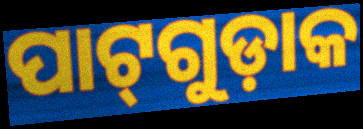
ପାଟ୍‌ଗୁଡ଼ାକ